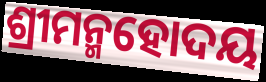
ଶ୍ରୀମନ୍ମହୋଦୟ